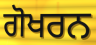
ਗੋਖਰਨ